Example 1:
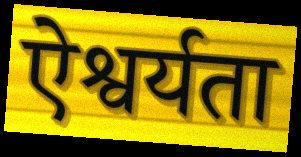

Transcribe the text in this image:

ऐश्वर्यता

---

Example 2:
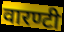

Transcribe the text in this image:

वारण्टी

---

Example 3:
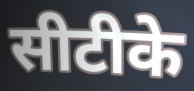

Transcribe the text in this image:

सीटीके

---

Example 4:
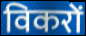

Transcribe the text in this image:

विकरों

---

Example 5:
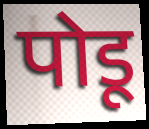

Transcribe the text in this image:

पोडू